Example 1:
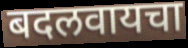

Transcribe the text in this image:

बदलवायचा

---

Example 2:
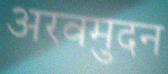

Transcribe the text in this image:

अरवमुदन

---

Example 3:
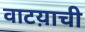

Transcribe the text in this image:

वाटय़ाची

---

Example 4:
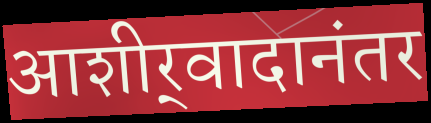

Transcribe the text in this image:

आशीर्वादानंतर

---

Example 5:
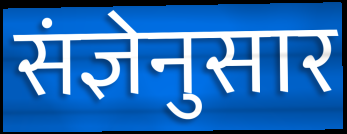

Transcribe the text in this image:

संज्ञेनुसार